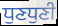
ਧੁਣਧੁਣੀ